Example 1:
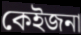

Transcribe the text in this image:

কেইজনা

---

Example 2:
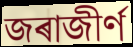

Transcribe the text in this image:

জৰাজীৰ্ণ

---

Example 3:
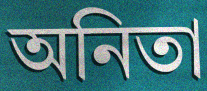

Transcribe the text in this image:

অনিতা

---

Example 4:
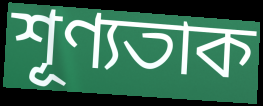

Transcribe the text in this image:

শূণ্যতাক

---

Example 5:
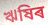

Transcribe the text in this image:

ঋষিৰ